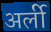
अर्ली